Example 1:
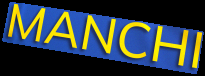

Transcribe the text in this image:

MANCHI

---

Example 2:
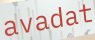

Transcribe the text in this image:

avadat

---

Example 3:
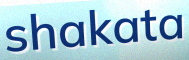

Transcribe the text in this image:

shakata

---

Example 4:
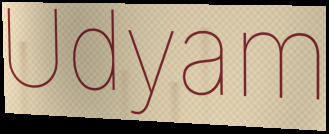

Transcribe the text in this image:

Udyam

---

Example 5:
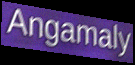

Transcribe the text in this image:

Angamaly